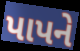
પાપને